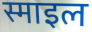
स्माइल